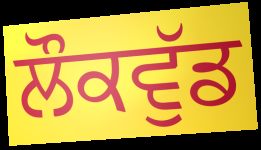
ਲੌਕਵੁੱਡ